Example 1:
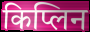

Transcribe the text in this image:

किप्लिन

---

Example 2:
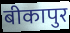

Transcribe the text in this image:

बीकापुर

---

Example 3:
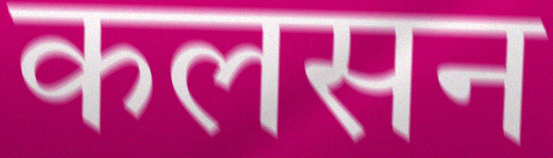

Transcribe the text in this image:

कलसन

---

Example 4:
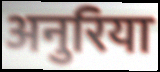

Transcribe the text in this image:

अनुरिया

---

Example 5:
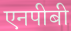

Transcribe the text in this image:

एनपीबी